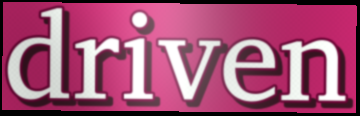
driven